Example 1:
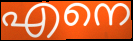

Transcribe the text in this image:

എനെ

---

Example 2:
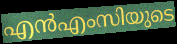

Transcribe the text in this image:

എൻഎംസിയുടെ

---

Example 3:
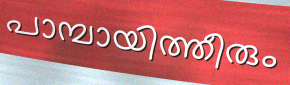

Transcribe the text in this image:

പാമ്പായിത്തീരും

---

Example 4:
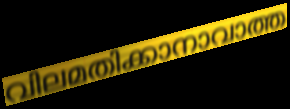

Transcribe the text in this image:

വിലമതിക്കാനാവാത്ത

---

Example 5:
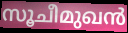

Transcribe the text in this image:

സൂചീമുഖൻ